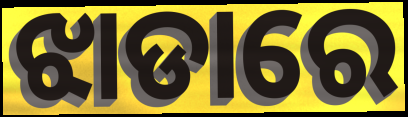
ଝାଡାରେ